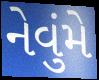
નેવુંમે